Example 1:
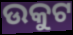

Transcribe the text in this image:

ଉକୁଟ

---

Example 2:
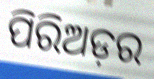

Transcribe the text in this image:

ପିରିଅଡ଼ର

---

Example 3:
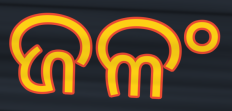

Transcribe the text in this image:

ଜଳଂ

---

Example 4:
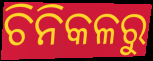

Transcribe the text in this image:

ଚିନିକଳରୁ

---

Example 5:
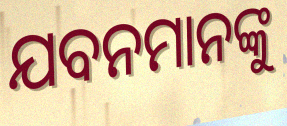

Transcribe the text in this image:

ଯବନମାନଙ୍କୁ